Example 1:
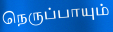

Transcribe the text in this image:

நெருப்பாயும்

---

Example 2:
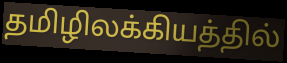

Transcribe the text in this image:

தமிழிலக்கியத்தில்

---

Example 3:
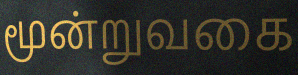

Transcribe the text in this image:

மூன்றுவகை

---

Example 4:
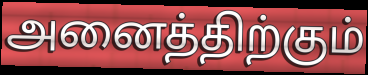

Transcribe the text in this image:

அனைத்திற்கும்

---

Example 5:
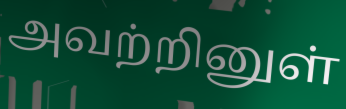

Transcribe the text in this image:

அவற்றினுள்